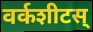
वर्कशीटस्